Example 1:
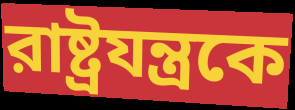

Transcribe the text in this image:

রাষ্ট্রযন্ত্রকে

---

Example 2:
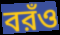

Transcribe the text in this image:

বরঁও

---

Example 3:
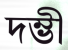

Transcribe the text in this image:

দম্ভী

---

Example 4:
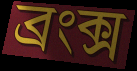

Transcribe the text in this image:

ব্রংক্স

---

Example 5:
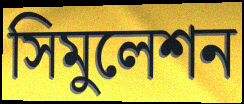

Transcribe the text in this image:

সিমুলেশন